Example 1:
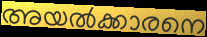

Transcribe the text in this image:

അയൽക്കാരനെ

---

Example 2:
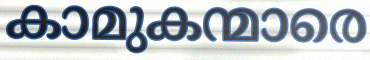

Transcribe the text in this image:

കാമുകന്മാരെ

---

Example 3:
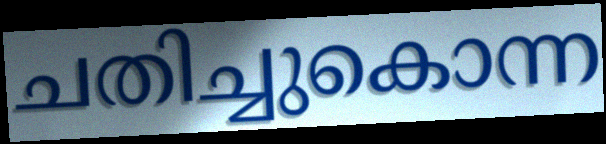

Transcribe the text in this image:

ചതിച്ചുകൊന്ന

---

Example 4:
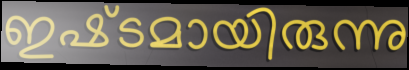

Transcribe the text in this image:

ഇഷ്‌ടമായിരുന്നു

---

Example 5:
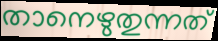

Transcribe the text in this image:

താനെഴുതുന്നത്